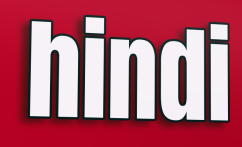
hindi